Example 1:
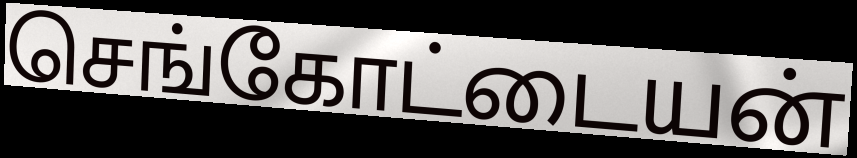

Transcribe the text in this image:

செங்கோட்டையன்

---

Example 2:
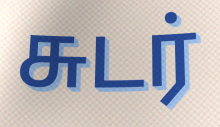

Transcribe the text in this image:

சுடர்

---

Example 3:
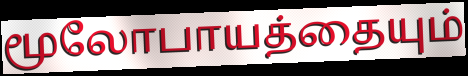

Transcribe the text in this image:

மூலோபாயத்தையும்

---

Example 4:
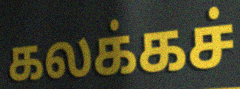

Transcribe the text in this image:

கலக்கச்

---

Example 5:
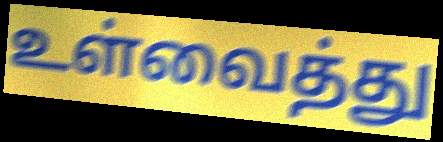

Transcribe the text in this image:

உள்வைத்து